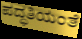
ಪದ್ಧತಿಯಂತೆ